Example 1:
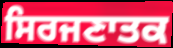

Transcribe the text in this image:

ਸਿਰਜਣਾਤਕ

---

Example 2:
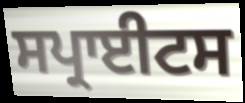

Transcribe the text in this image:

ਸਪ੍ਰਾਈਟਸ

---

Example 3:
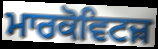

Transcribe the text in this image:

ਮਾਰਕੋਵਿਟਜ਼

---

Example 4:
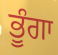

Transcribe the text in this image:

ਭੂੰਗਾ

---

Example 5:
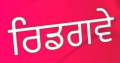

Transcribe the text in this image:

ਰਿਡਗਵੇ